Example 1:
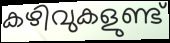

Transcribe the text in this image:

കഴിവുകളുണ്ട്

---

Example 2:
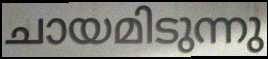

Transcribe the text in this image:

ചായമിടുന്നു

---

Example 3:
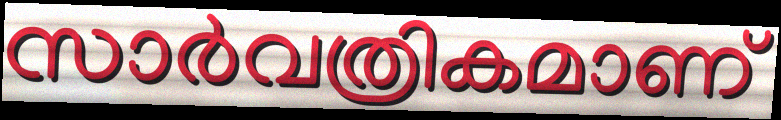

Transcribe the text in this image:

സാർവത്രികമാണ്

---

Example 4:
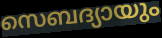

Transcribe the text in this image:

സെബദ്യായും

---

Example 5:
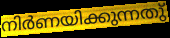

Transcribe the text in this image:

നിർണയിക്കുന്നതു്